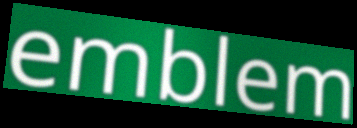
emblem